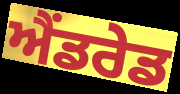
ਐਂਡਰੇਡ